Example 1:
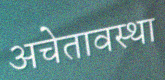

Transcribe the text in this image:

अचेतावस्था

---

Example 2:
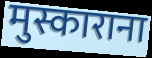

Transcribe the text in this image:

मुस्काराना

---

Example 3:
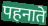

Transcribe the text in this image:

पहनाते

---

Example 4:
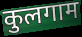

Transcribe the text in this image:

कुलगाम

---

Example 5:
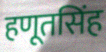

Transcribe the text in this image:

हणूतसिंह